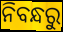
ନିବନ୍ଧରୁ